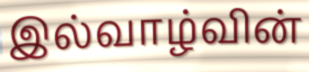
இல்வாழ்வின்